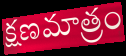
క్షణమాత్రం